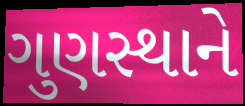
ગુણસ્થાને